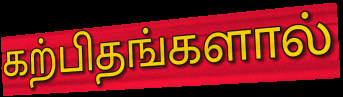
கற்பிதங்களால்